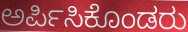
ಅರ್ಪಿಸಿಕೊಂಡರು